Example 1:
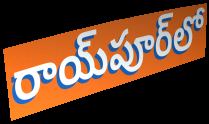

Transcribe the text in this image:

రాయ్‌పూర్‌లో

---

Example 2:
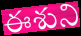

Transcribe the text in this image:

ఈశుని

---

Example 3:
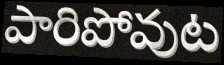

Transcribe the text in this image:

పారిపోవుట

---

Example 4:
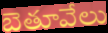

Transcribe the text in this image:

బెతూవేలు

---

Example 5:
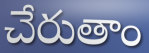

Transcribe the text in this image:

చేరుతాం